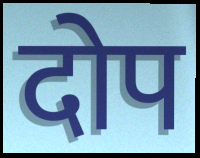
दोप